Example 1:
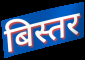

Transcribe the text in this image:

बिस्तर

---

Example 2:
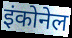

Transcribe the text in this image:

इंकोनेल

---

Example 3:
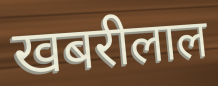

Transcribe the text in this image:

खबरीलाल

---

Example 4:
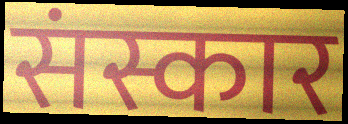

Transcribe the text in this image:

संस्कार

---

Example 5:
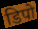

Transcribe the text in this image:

डिपो